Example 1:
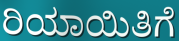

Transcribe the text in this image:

ರಿಯಾಯಿತಿಗೆ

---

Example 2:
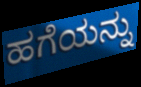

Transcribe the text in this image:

ಹಗೆಯನ್ನು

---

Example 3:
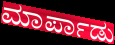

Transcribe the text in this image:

ಮಾರ್ಪಾಡು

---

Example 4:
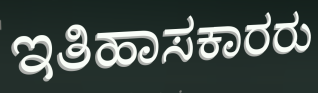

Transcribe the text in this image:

ಇತಿಹಾಸಕಾರರು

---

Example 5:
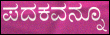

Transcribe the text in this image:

ಪದಕವನ್ನೂ